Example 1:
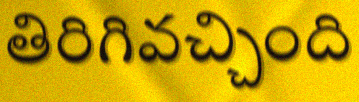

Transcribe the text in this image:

తిరిగివచ్చింది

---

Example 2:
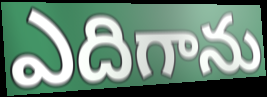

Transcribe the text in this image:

ఎదిగాను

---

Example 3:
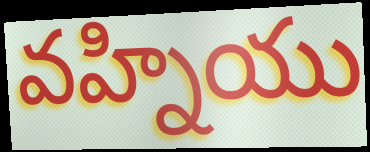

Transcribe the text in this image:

వహ్నియు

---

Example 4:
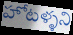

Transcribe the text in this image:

హోటళ్ళని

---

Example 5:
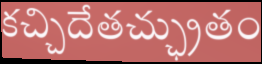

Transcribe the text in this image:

కచ్చిదేతచ్ఛ్రుతం